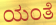
ಯಂತೆ